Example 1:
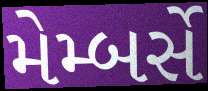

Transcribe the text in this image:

મેમ્બર્સે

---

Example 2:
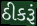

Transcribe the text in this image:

ઠીકરૂં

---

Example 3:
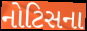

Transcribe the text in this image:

નોટિસના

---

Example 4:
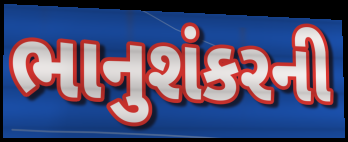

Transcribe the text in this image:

ભાનુશંકરની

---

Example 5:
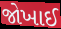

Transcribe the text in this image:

જોખાઈ